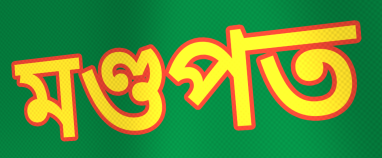
মণ্ডপত